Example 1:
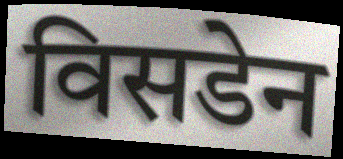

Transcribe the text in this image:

विसडेन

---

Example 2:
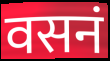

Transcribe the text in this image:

वसनं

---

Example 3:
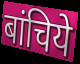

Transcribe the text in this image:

बांचिये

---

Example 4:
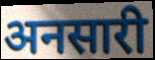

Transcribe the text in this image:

अनसारी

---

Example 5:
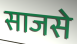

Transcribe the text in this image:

साजसे